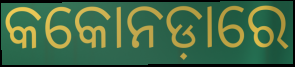
କକୋନଡ଼ାରେ